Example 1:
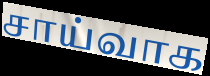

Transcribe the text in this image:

சாய்வாக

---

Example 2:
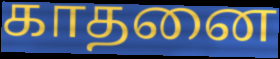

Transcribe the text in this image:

காதனை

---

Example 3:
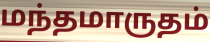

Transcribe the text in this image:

மந்தமாருதம்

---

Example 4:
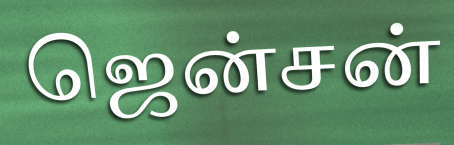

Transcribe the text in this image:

ஜென்சன்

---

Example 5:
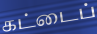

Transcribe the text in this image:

கட்டைப்